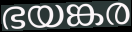
ഭയങ്കര